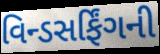
વિન્ડસર્ફિંગની